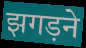
झगड़ने